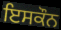
ਇਸਕੌਨ